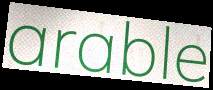
arable